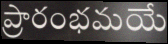
ప్రారంభమయే